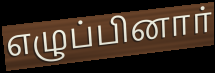
எழுப்பினார்